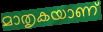
മാതൃകയാണ്